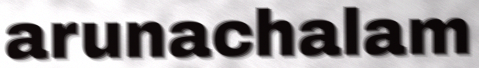
arunachalam